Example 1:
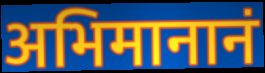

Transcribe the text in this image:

अभिमानानं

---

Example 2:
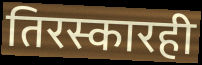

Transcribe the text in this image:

तिरस्कारही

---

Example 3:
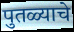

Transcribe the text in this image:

पुतळ्याचे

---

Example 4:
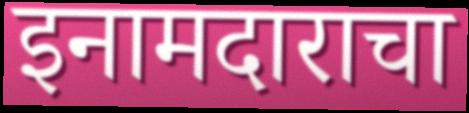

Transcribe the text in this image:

इनामदाराचा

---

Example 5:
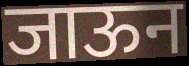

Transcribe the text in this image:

जाऊन